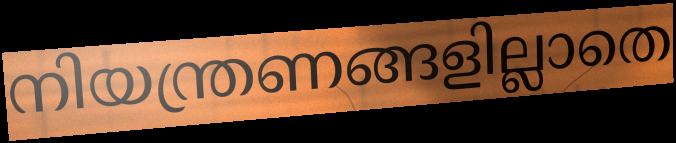
നിയന്ത്രണങ്ങളില്ലാതെ